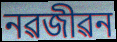
নৱজীৱন